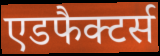
एडफैक्टर्स